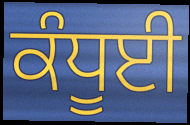
ਕੰਧੂਈ